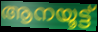
ആനയൂട്ട്